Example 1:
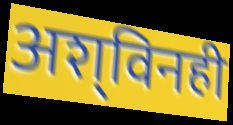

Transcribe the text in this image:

अश्विनही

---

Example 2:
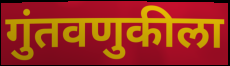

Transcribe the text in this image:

गुंतवणुकीला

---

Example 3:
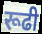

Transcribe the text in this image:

रूढी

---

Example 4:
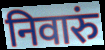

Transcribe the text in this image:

निवारुं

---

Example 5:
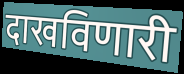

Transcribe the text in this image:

दाखविणारी